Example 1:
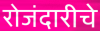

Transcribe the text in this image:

रोजंदारीचे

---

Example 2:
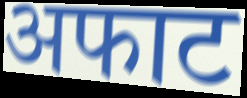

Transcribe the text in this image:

अफाट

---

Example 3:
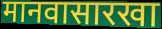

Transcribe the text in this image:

मानवासारखा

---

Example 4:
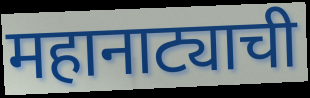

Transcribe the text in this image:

महानाट्याची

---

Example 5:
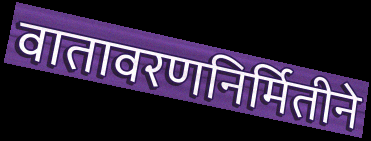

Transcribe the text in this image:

वातावरणनिर्मितीने